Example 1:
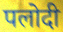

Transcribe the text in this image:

पलोदी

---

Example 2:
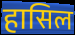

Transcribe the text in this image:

हासिल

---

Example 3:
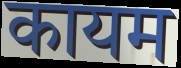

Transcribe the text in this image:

कायम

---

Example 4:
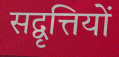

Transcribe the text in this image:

सद्वृत्तियों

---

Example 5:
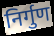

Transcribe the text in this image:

निर्गुण